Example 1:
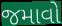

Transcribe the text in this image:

જમાવો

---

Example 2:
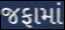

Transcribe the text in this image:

જફામાં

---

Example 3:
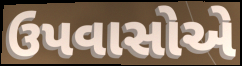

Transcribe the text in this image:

ઉપવાસોએ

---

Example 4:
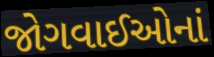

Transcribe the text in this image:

જોગવાઈઓનાં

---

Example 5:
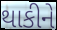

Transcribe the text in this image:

થાકીને